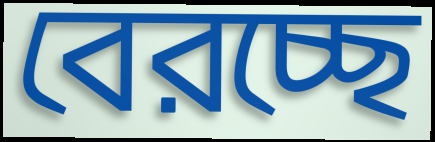
বেরচ্ছে